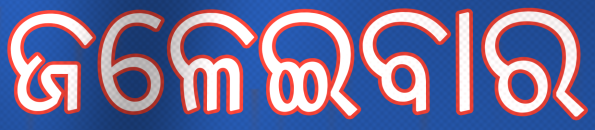
ଜଳେଇବାର